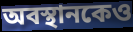
অবস্থানকেও